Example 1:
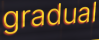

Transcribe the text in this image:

gradual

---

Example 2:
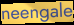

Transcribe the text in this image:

neengale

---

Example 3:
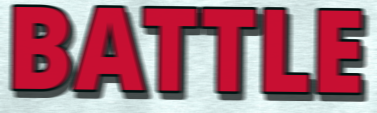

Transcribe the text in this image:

BATTLE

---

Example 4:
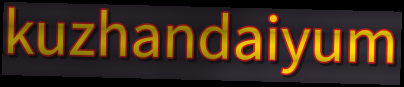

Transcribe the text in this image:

kuzhandaiyum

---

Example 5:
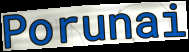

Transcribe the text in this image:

Porunai